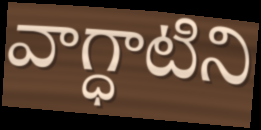
వాగ్ధాటిని